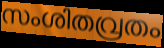
സംശിതവ്രതം